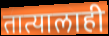
तात्यालाही